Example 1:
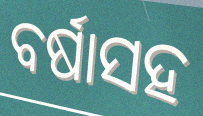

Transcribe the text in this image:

ବର୍ଷାସହ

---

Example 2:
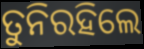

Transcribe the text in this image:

ତୁନିରହିଲେ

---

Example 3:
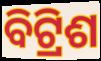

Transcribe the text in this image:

ବିଟ୍ରିଶ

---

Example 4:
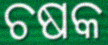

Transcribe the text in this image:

ଚଷକ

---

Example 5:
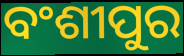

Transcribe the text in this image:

ବଂଶୀପୁର